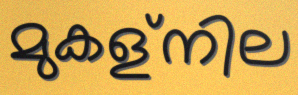
മുകള്നില